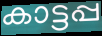
കാട്ടപ്പ